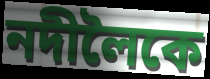
নদীলৈকে